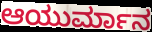
ಆಯುರ್ಮಾನ